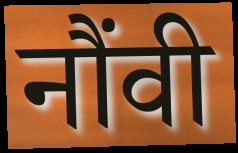
नौंवी